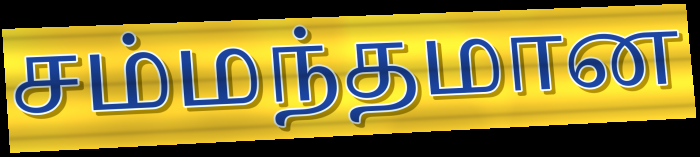
சம்மந்தமான